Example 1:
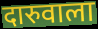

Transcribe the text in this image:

दारुवाला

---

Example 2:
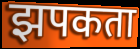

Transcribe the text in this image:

झपकता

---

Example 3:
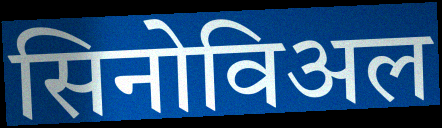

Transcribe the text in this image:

सिनोविअल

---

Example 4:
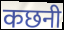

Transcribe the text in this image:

कछनी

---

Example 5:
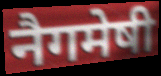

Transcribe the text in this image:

नैगमेषी